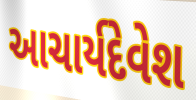
આચાર્યદેવેશ